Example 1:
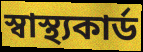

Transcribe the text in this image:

স্বাস্থ্যকার্ড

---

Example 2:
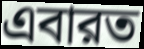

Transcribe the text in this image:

এবারত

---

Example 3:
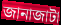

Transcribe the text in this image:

জানাজাটা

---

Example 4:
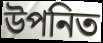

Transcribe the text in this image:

উপনিত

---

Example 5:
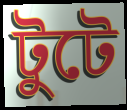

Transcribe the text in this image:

টুটে